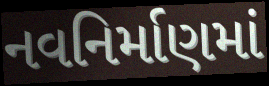
નવનિર્માણમાં